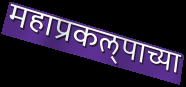
महाप्रकल्पाच्या